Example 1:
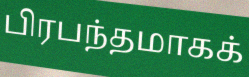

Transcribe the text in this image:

பிரபந்தமாகக்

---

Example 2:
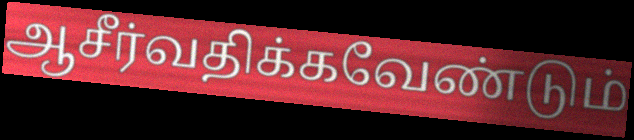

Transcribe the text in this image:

ஆசீர்வதிக்கவேண்டும்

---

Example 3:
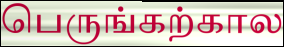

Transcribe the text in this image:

பெருங்கற்கால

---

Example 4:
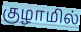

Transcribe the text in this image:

குழாமில்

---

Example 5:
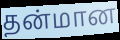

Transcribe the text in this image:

தன்மான